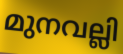
മുനവല്ലി